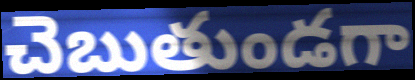
చెబుతుండగా